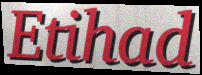
Etihad